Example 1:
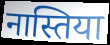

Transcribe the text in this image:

नास्तिया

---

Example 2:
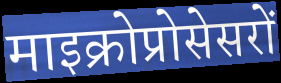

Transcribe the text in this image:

माइक्रोप्रोसेसरों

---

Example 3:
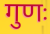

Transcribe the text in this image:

गुणः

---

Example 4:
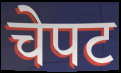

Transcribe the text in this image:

चेपट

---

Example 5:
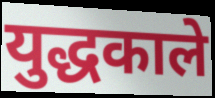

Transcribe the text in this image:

युद्धकाले